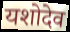
यशोदेव